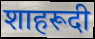
शाहरूदी